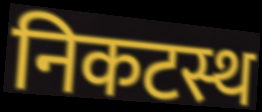
निकटस्थ